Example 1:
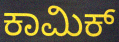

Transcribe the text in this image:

ಕಾಮಿಕ್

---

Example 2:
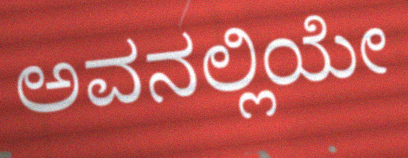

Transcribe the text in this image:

ಅವನಲ್ಲಿಯೇ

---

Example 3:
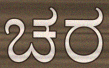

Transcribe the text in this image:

ಚರ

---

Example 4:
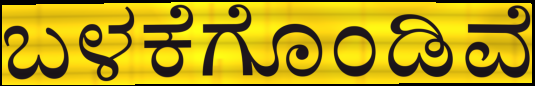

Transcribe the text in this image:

ಬಳಕೆಗೊಂಡಿವೆ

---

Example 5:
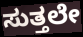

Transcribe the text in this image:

ಸುತ್ತಲೇ